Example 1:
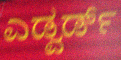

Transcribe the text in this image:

ಎಡ್ವರ್ಡ್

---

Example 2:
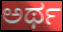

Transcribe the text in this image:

ಅರ್ಥ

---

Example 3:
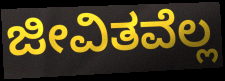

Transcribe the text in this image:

ಜೀವಿತವೆಲ್ಲ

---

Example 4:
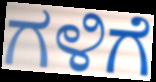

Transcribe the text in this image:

ಗಳಿಗೆ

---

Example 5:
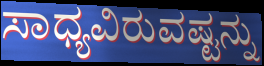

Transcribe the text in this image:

ಸಾಧ್ಯವಿರುವಷ್ಟನ್ನು